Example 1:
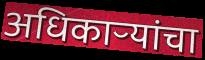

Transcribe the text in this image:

अधिकाऱ्यांचा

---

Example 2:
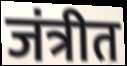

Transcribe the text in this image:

जंत्रीत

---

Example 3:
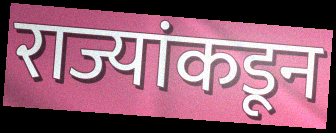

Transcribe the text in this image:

राज्यांकडून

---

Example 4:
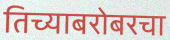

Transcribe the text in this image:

तिच्याबरोबरचा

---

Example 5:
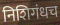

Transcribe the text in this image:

निशिगंधच